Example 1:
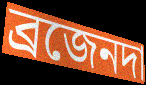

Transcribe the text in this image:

ব্রজেনদা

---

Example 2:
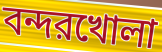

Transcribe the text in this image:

বন্দরখোলা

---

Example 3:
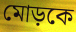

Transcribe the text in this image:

মোড়কে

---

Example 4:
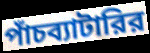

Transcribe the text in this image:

পাঁচব্যাটারির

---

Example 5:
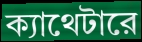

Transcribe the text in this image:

ক্যাথেটারে